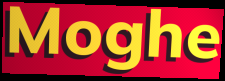
Moghe